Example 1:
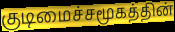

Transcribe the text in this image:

குடிமைச்சமூகத்தின்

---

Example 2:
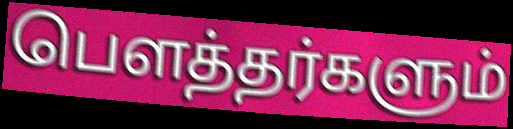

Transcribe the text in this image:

பௌத்தர்களும்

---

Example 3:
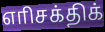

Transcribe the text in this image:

எரிசக்திக்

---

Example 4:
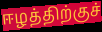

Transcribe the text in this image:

ஈழத்திற்குச்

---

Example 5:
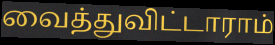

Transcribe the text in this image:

வைத்துவிட்டாராம்